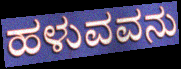
ಹಳುವವನು